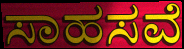
ಸಾಹಸವೆ